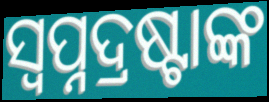
ସ୍ୱପ୍ନଦ୍ରଷ୍ଟାଙ୍କ